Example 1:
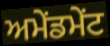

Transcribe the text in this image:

ਅਮੇਂਡਮੇਂਟ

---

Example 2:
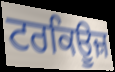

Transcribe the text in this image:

ਟਰਕਿਊਜ਼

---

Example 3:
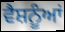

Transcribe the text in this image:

ਵੈਸ਼ਨੂੰਆਂ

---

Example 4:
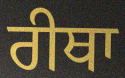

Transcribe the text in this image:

ਰੀਥਾ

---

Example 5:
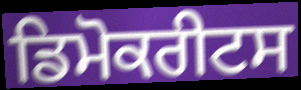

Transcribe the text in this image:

ਡਿਮੋਕਰੀਟਸ